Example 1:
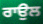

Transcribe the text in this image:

ਰਾਉਲ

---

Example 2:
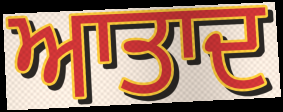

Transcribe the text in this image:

ਆਤਾਦ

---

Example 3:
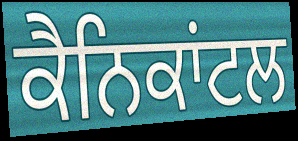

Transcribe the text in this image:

ਕੈਨਿਕਾਂਟਲ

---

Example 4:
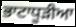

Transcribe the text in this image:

ਭਾਟਾਧੂੜੀਆ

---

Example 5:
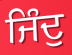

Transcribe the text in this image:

ਜਿੰਦੁ